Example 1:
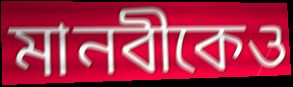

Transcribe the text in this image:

মানবীকেও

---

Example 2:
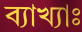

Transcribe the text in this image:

ব্যাখ্যাঃ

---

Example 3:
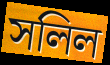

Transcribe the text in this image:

সলিল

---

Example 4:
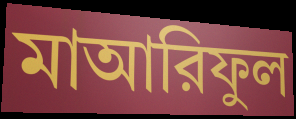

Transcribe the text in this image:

মাআরিফুল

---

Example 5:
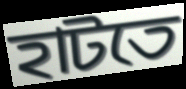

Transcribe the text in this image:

হাটতে